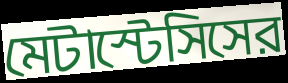
মেটাস্টেসিসের